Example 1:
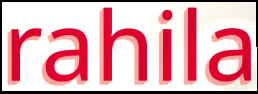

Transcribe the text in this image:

rahila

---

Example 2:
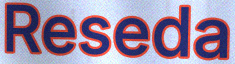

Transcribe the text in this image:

Reseda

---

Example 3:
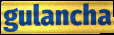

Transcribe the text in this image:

gulancha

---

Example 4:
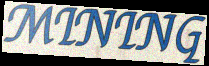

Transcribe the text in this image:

MINING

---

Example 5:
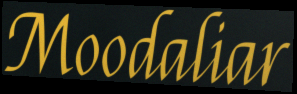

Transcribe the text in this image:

Moodaliar